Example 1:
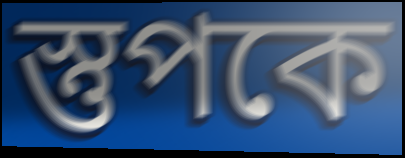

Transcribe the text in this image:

স্তুপকে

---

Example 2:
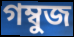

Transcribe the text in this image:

গম্বুজ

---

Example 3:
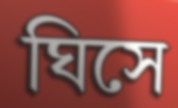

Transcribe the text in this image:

ঘিসে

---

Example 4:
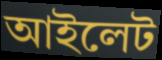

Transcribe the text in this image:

আইলেট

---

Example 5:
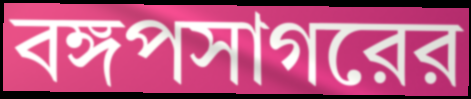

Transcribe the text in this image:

বঙ্গপসাগরের